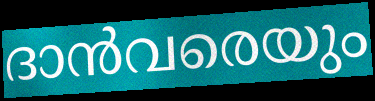
ദാൻവരെയും